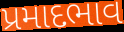
પ્રમાદભાવ